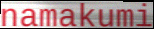
namakumi